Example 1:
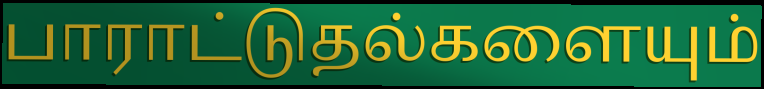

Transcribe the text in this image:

பாராட்டுதல்களையும்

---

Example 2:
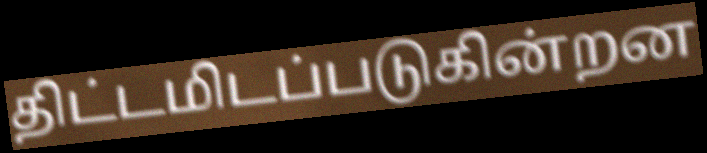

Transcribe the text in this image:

திட்டமிடப்படுகின்றன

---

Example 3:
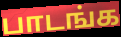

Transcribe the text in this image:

பாடங்க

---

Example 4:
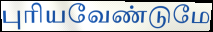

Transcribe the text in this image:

புரியவேண்டுமே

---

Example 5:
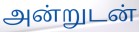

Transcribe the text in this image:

அன்றுடன்